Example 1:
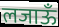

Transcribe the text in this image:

लजाऊँ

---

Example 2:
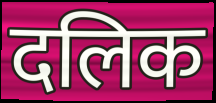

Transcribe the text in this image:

दलिक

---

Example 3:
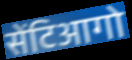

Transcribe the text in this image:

सेंटिआगो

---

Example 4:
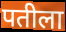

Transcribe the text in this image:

पतीला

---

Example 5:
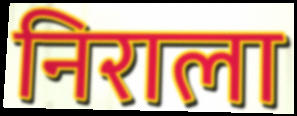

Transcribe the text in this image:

निराला